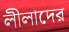
লীলাদের